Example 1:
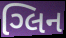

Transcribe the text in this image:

ગ્લિન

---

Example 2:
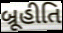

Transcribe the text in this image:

બ્રૂહીતિ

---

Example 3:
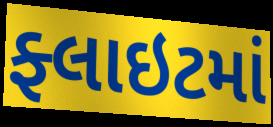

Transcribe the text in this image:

ફ્લાઇટમાં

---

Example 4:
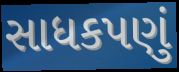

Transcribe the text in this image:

સાધકપણું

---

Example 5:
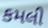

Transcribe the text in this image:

કમલી